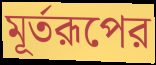
মূর্তরূপের